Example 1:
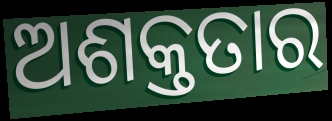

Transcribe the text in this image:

ଅଶକ୍ତତାର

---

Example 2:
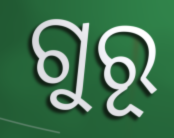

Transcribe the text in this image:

ଗୁରୂ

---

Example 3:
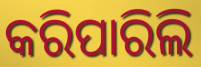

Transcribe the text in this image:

କରିପାରିଲି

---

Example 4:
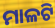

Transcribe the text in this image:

ମାଳଟି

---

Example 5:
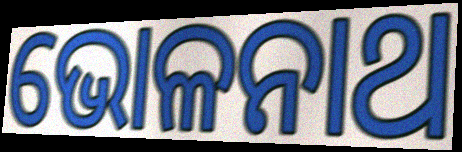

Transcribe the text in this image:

ଭୋଳନାଥ